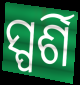
ସ୍ପର୍ଶି